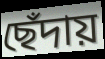
ছেঁদায়